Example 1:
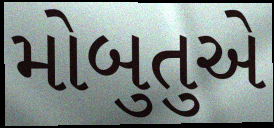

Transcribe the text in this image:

મોબુતુએ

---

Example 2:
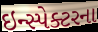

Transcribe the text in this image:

ઇન્સ્પેક્ટરના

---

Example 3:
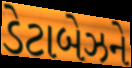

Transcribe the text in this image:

ડેટાબેઝને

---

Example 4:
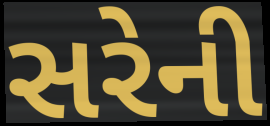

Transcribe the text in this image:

સરેની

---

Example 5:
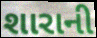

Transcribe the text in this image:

શારાની